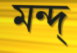
মন্দ্